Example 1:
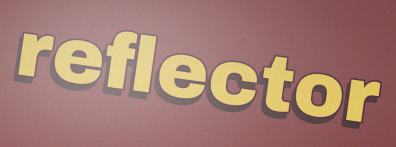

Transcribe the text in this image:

reflector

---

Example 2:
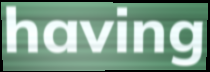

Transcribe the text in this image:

having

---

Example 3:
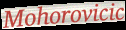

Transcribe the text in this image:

Mohorovicic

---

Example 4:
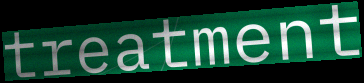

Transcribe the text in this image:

treatment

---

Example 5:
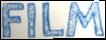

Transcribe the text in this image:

FILM